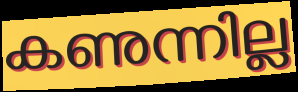
കണുന്നില്ല